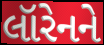
લૉરેનને